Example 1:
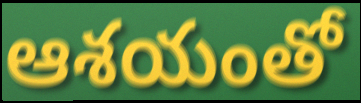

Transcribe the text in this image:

ఆశయంతో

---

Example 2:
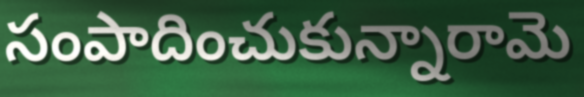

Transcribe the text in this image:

సంపాదించుకున్నారామె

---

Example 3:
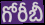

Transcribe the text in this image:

గోరీబీ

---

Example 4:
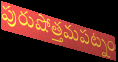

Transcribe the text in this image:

పురుషోత్తమపట్నం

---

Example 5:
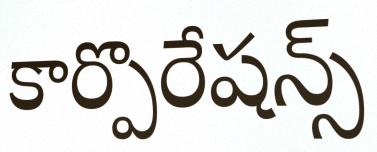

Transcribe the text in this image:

కార్పొరేషన్స్